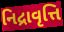
નિદ્રાવૃત્તિ